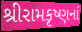
શ્રીરામકૃષ્ણનાં